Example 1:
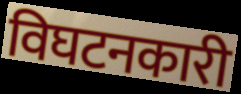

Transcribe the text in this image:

विघटनकारी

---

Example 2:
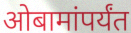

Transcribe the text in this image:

ओबामांपर्यंत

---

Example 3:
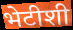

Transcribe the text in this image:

भेटीशी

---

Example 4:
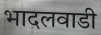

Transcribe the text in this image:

भादलवाडी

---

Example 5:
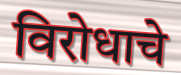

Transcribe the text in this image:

विरोधाचे